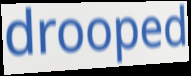
drooped